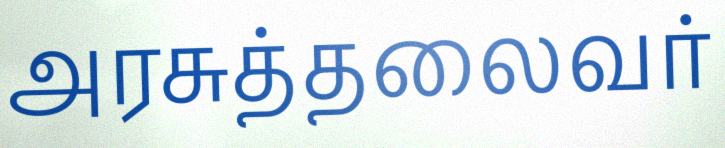
அரசுத்தலைவர்